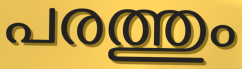
പരത്തും